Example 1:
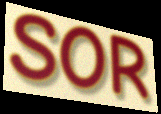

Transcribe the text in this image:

SOR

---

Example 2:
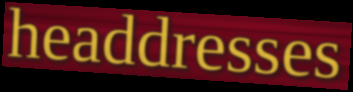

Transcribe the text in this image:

headdresses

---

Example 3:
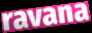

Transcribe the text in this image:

ravana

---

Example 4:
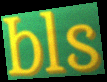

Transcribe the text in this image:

bls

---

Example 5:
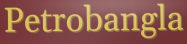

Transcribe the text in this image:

Petrobangla